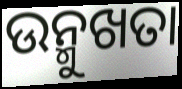
ଉନ୍ମୁଖତା